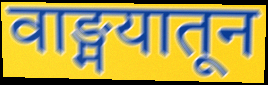
वाङ्मयातून